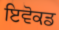
ਇਵੋਕਡ